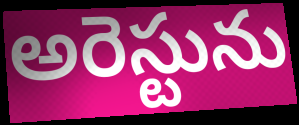
అరెస్టును